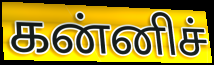
கன்னிச்